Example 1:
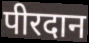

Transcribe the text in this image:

पीरदान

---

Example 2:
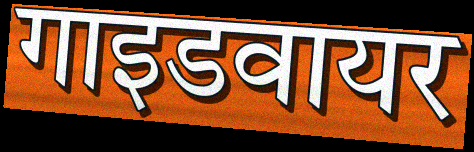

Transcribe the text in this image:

गाइडवायर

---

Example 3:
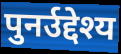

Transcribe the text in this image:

पुनर्उद्देश्य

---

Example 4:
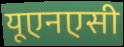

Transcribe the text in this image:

यूएनएसी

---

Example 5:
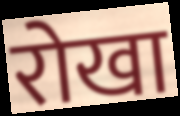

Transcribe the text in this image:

रोखा